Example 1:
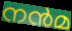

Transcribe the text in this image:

നൻമ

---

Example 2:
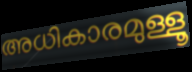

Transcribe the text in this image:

അധികാരമുള്ളൂ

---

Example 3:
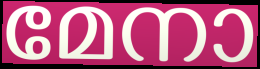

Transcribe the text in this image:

മേനാ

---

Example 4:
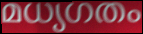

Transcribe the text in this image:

മധ്യഗതം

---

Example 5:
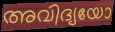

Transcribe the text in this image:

അവിദ്യയോ